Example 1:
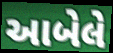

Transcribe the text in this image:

આબેલે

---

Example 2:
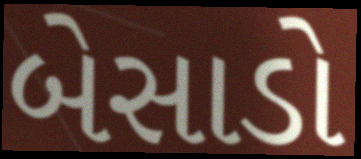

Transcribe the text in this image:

બેસાડો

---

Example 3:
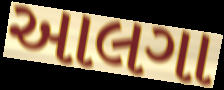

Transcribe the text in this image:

આલગા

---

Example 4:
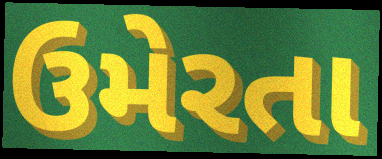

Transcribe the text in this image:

ઉમેરતા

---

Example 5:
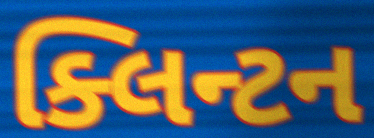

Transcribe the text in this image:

ક્લિન્ટન